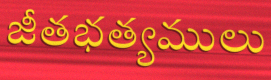
జీతభత్యములు